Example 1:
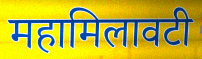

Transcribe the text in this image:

महामिलावटी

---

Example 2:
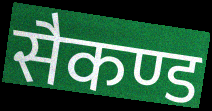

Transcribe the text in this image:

सैकण्ड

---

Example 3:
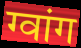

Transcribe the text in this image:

ग्वांग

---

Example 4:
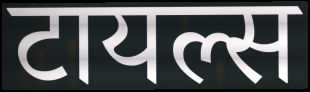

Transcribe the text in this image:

टायल्स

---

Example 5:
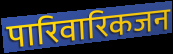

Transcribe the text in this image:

पारिवारिकजन